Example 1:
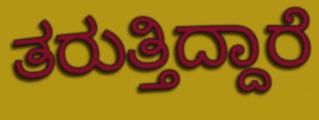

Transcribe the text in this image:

ತರುತ್ತಿದ್ದಾರೆ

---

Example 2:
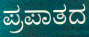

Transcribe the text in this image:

ಪ್ರಪಾತದ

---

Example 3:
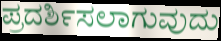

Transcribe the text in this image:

ಪ್ರದರ್ಶಿಸಲಾಗುವುದು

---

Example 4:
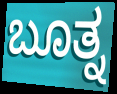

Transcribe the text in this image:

ಬೂತ್ನ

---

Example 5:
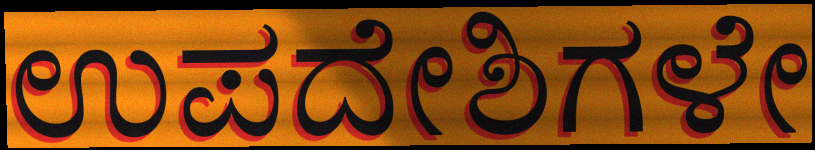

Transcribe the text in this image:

ಉಪದೇಶಿಗಳೇ